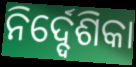
ନିର୍ଦ୍ଦେଶିକା